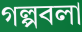
গল্পবলা